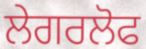
ਲੇਗਰਲੋਫ